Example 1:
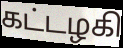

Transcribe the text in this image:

கட்டழகி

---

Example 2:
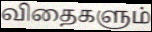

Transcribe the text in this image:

விதைகளும்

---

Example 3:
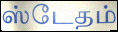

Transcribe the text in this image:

ஸ்டேதம்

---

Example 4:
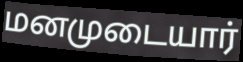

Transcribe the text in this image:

மனமுடையார்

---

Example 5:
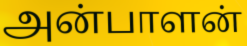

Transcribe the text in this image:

அன்பாளன்